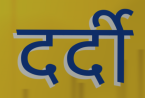
दर्दी